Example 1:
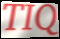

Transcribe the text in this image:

TIQ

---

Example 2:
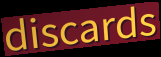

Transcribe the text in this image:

discards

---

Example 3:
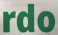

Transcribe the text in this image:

rdo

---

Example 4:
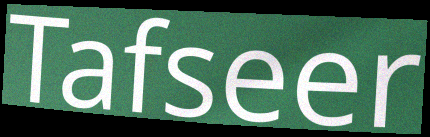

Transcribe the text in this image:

Tafseer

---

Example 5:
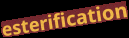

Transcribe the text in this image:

esterification